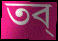
তব্